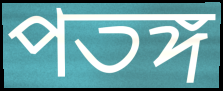
পতঙ্গ